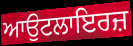
ਆਉਟਲਾਇਰਜ਼